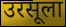
उरसूला